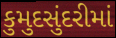
કુમુદસુંદરીમાં